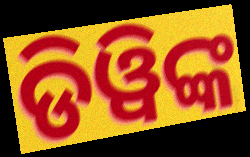
ଡିୱିଙ୍କ